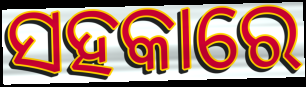
ସହକାରେ